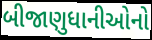
બીજાણુધાનીઓનો